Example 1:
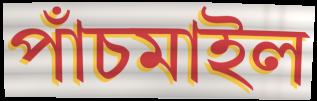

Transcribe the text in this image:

পাঁচমাইল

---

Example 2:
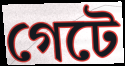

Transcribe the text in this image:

গেটে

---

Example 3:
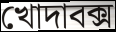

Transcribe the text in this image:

খোদাবক্স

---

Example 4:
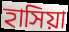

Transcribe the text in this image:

হাসিয়া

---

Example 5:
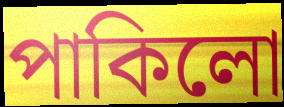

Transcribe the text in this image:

পাকিলো